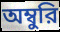
অম্বুরি